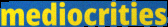
mediocrities